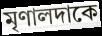
মৃণালদাকে